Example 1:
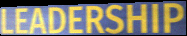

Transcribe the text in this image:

LEADERSHIP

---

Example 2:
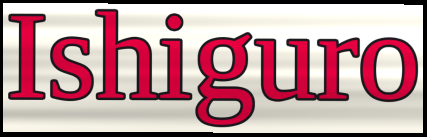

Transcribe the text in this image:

Ishiguro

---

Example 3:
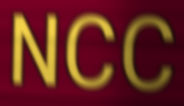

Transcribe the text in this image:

NCC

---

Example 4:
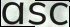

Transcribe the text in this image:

asc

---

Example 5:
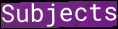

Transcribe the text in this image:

Subjects